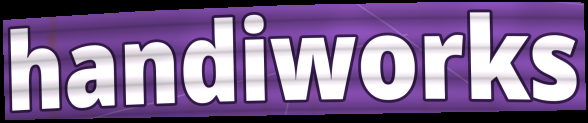
handiworks